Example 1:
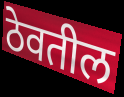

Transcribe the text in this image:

ठेवतील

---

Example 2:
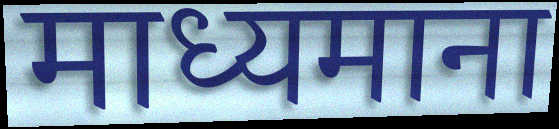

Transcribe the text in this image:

माध्यमाना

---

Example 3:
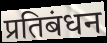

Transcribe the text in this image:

प्रतिबंधन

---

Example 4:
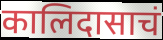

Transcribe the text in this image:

कालिदासाचं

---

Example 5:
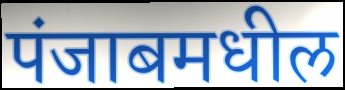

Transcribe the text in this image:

पंजाबमधील